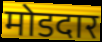
मोडदार